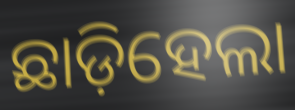
ଛାଡ଼ିହେଲା